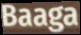
Baaga